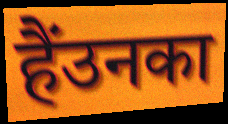
हैंउनका